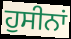
ਹੁਸੀਨਾਂ